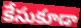
కేసుకూడా